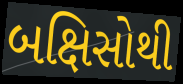
બક્ષિસોથી